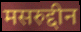
मसरुद्दीन